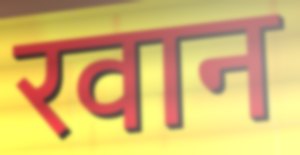
रवान